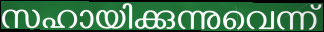
സഹായിക്കുന്നുവെന്ന്